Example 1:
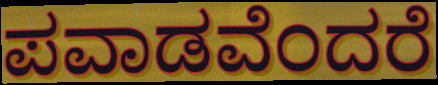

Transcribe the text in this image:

ಪವಾಡವೆಂದರೆ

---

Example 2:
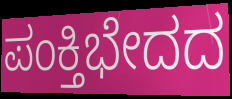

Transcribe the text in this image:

ಪಂಕ್ತಿಭೇದದ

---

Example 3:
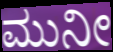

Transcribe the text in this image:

ಮುನೀ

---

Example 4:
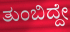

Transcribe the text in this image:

ತುಂಬಿದ್ದೇ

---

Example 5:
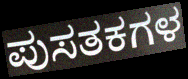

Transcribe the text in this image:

ಪುಸತಕಗಳ